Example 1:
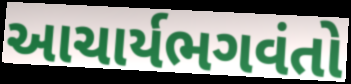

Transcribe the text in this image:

આચાર્યભગવંતો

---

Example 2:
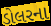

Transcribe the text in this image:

ડોલરના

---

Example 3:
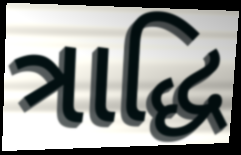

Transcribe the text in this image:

ત્રાદ્ધિ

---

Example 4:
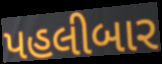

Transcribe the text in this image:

પહલીબાર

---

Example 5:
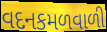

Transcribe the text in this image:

વદનકમળવાળી